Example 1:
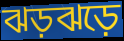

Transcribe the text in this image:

ঝড়ঝড়ে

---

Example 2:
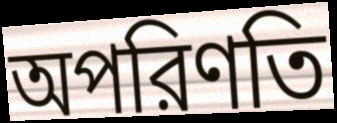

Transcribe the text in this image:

অপরিণতি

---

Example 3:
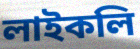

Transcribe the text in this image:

লাইকলি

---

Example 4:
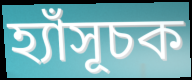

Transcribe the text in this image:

হ্যাঁসূচক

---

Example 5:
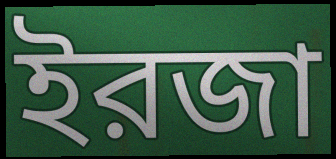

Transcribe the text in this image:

ইরজা